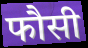
फौसी